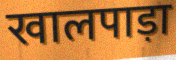
खालपाड़ा